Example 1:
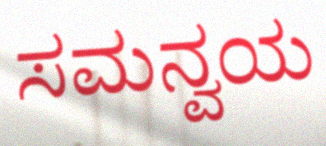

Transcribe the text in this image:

ಸಮನ್ವಯ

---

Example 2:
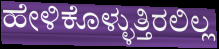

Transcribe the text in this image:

ಹೇಳಿಕೊಳ್ಳುತ್ತಿರಲಿಲ್ಲ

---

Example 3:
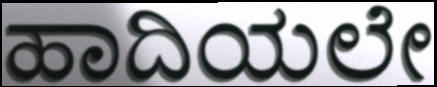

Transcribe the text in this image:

ಹಾದಿಯಲೇ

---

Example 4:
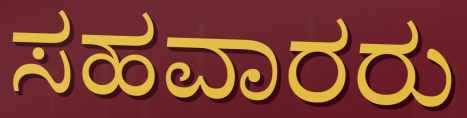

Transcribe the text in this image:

ಸಹವಾರರು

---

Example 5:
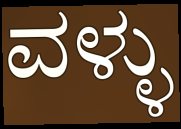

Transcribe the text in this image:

ವಳ್ಳು